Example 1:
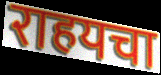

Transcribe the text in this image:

राहयचा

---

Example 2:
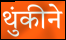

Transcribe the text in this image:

थुंकीने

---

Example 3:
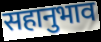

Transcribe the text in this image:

सहानुभाव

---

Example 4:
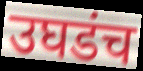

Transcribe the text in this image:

उघडंच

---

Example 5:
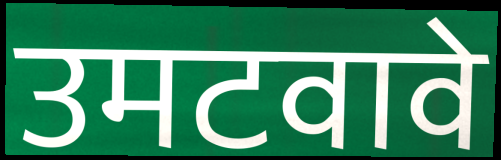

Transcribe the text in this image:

उमटवावे